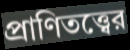
প্রাণিতত্ত্বের